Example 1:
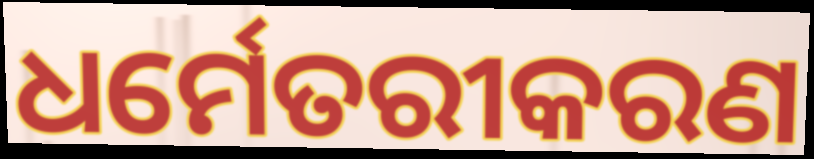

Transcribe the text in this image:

ଧର୍ମେତରୀକରଣ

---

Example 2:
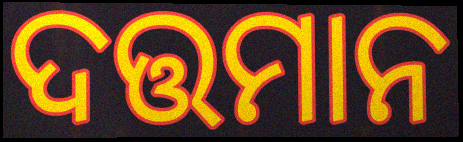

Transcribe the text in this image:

ଦତ୍ତମାନ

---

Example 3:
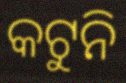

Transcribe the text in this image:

କଟୁନି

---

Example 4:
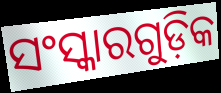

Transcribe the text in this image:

ସଂସ୍କାରଗୁଡ଼ିକ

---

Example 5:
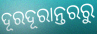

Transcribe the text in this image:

ଦୂରଦୂରାନ୍ତରରୁ